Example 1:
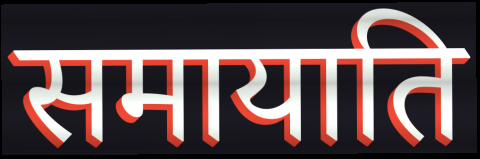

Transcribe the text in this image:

समायाति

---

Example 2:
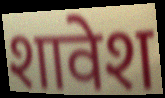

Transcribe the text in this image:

शावेश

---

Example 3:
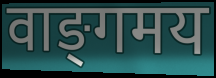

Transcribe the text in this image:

वाङ्गमय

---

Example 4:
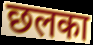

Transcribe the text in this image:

छलका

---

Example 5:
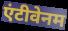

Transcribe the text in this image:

एंटीवेनम